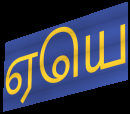
ஏயெ